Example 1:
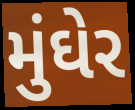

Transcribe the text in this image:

મુંઘેર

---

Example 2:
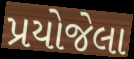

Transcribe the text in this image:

પ્રયોજેલા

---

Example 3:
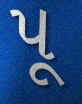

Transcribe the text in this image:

પૂ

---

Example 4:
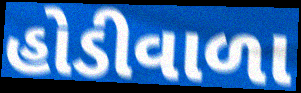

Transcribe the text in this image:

હોડીવાળા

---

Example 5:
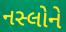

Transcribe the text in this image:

નસ્લોને